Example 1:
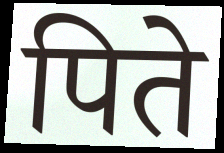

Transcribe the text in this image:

पिते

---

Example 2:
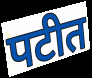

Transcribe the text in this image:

पटीत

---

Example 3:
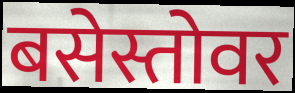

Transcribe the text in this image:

बसेस्तोवर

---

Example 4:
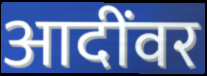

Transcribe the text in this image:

आदींवर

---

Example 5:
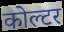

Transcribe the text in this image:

कोल्टर